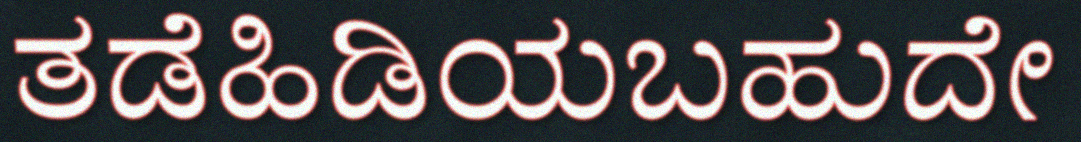
ತಡೆಹಿಡಿಯಬಹುದೇ